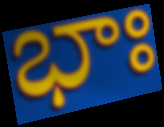
భాః